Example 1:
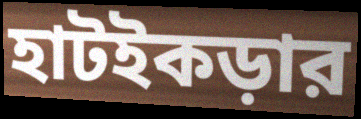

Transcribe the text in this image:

হাটইকড়ার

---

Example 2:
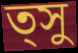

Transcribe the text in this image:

ত্সু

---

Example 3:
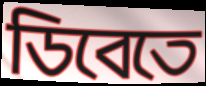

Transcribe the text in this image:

ডিবেতে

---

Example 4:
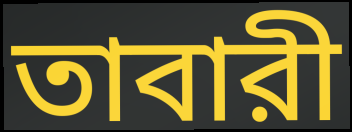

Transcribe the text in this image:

তাবারী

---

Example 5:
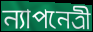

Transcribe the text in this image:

ন্যাপনেত্রী